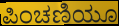
ಪಿಂಚಣಿಯೂ